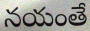
నయంతే